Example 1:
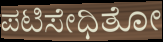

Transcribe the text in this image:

ಪಟಿಸೇಧಿತೋ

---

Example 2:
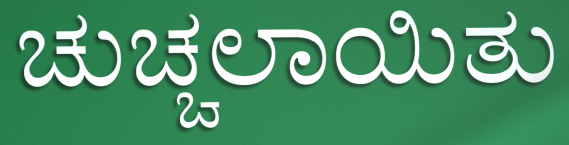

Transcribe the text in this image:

ಚುಚ್ಚಲಾಯಿತು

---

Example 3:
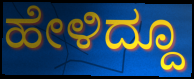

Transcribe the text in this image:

ಹೇಳಿದ್ದೂ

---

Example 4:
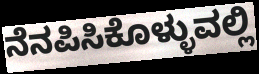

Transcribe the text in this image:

ನೆನಪಿಸಿಕೊಳ್ಳುವಲ್ಲಿ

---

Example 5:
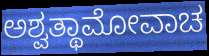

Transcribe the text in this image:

ಅಶ್ವತ್ಥಾಮೋವಾಚ